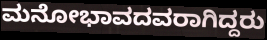
ಮನೋಭಾವದವರಾಗಿದ್ದರು